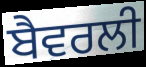
ਬੈਵਰਲੀ